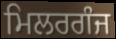
ਮਿਲਰਗੰਜ